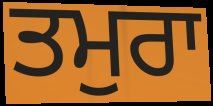
ਤਮੁਰਾ